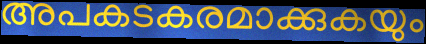
അപകടകരമാക്കുകയും